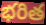
భరిత